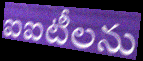
ఐఐటీలను